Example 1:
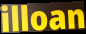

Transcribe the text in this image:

illoan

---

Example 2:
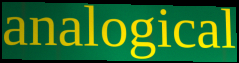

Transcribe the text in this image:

analogical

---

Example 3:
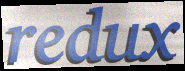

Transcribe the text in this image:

redux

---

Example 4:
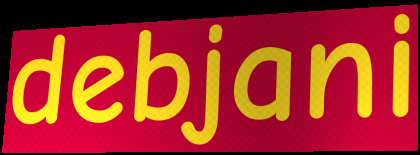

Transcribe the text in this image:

debjani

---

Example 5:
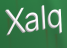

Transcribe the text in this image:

Xalq